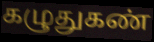
கழுதுகண்